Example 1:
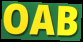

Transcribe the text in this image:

OAB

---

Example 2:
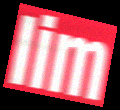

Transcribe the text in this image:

lim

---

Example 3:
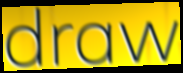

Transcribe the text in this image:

draw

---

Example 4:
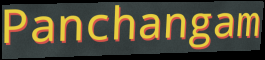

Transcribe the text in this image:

Panchangam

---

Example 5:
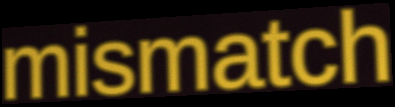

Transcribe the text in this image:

mismatch